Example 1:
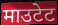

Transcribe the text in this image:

माउटेट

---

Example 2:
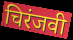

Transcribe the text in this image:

चिरंजवी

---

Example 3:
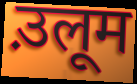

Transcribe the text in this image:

उ़लूम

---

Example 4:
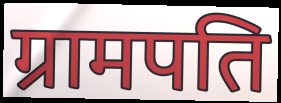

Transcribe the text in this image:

ग्रामपति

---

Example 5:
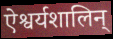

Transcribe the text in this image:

ऐश्वर्यशालिन्